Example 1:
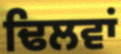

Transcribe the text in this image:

ਢਿਲਵਾਂ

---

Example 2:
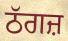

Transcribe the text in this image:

ਠੱਗਜ਼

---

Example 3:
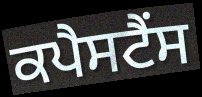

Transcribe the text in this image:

ਕਪੈਸਟੈਂਸ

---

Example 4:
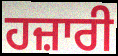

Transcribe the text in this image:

ਹਜ਼ਾਰੀ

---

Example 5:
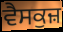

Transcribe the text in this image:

ਵੈਸਕੁਜ਼